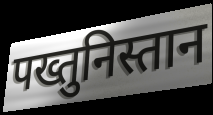
पख्तुनिस्तान